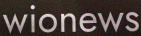
wionews